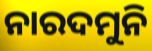
ନାରଦମୁନି